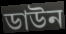
ডাউন